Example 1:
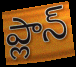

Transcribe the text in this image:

ప్లాన్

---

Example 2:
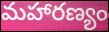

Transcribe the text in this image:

మహారణ్యం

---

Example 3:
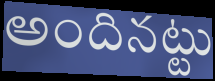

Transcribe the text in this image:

అందినట్టు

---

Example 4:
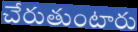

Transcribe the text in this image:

చేరుతుంటారు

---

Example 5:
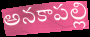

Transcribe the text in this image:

అనకాపల్లి